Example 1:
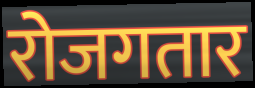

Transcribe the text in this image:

रोजगतार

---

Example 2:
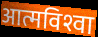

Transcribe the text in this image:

आत्मविश्वा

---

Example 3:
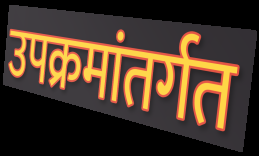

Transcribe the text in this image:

उपक्रमांतर्गत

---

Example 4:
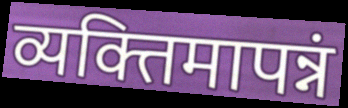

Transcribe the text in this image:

व्यक्तिमापन्नं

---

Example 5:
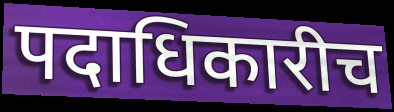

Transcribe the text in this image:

पदाधिकारीच